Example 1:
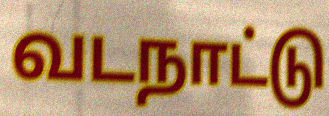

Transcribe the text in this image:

வடநாட்டு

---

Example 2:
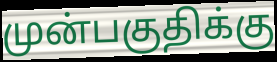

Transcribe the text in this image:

முன்பகுதிக்கு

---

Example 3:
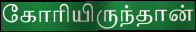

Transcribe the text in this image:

கோரியிருந்தான்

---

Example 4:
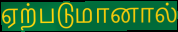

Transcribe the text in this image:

ஏற்படுமானால்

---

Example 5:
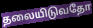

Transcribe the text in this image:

தலையிடுவதோ